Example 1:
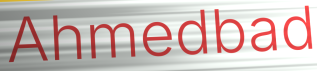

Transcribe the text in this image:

Ahmedbad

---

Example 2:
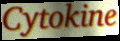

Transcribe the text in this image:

Cytokine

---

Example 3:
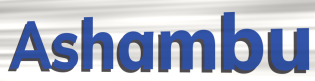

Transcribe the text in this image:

Ashambu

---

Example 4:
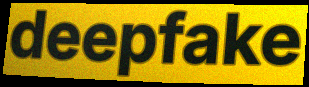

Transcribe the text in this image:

deepfake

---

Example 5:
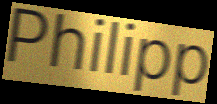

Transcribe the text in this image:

Philipp